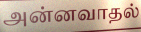
அன்னவாதல்